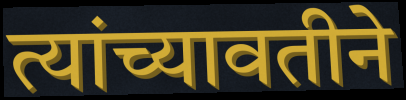
त्यांच्यावतीने